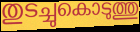
തുടച്ചുകൊടുത്തു